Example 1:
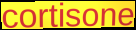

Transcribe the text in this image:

cortisone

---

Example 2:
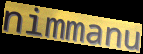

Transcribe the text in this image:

nimmanu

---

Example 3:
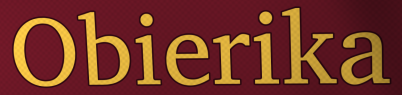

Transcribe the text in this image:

Obierika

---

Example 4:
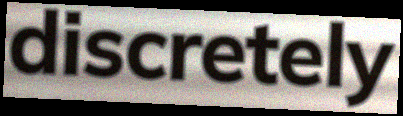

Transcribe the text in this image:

discretely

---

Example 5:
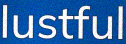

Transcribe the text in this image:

lustful